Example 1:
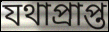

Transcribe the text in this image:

যথাপ্রাপ্ত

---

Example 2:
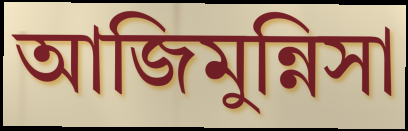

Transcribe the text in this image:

আজিমুন্নিসা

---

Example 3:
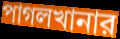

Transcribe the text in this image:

পাগলখানার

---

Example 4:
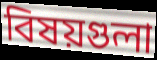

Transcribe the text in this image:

বিষয়গুলা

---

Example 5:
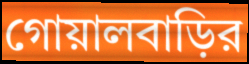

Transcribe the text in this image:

গোয়ালবাড়ির